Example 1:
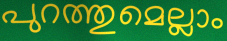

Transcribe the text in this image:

പുറത്തുമെല്ലാം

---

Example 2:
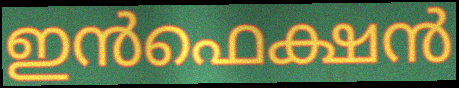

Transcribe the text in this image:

ഇൻഫെക്ഷൻ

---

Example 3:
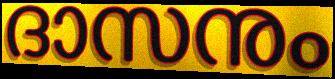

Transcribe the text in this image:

ദാസനും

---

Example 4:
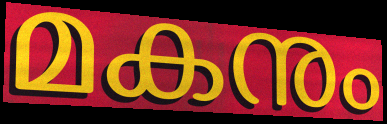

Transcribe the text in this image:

മകനും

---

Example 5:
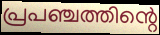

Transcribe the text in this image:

പ്രപഞ്ചത്തിന്റെ